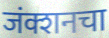
जंक्‍शनचा